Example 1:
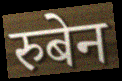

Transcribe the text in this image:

रुबेन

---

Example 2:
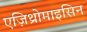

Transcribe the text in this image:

एज़िथ्रोमाइसिन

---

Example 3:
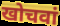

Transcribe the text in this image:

खोचवां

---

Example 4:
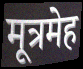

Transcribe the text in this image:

मूत्रमेह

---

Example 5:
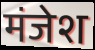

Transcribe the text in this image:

मंजेश